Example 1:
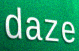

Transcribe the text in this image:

daze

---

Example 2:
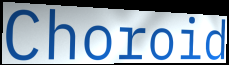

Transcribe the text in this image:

Choroid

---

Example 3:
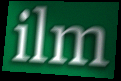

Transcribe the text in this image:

ilm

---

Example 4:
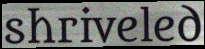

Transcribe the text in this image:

shriveled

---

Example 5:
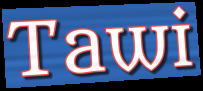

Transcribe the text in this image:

Tawi